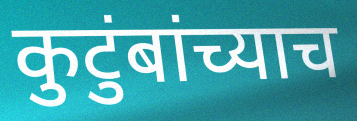
कुटुंबांच्याच